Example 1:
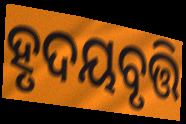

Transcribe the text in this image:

ହୃଦୟବୃତ୍ତି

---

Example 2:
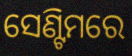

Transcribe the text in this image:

ସେଣ୍ଟିମରେ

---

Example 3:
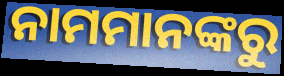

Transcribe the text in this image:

ନାମମାନଙ୍କରୁ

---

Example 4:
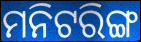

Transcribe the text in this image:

ମନିଟରିଙ୍ଗ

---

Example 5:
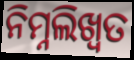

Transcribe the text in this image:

ନିମ୍ନଲିଖ୍ବତ